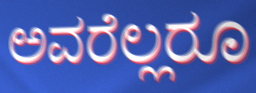
ಅವರೆಲ್ಲರೂ